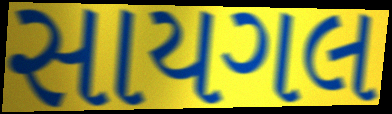
સાયગલ